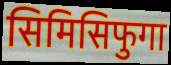
सिमिसिफुगा